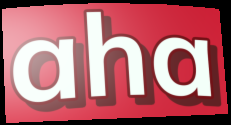
aha